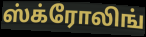
ஸ்க்ரோலிங்